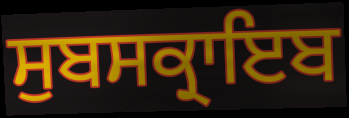
ਸੁਬਸਕ੍ਰਾਇਬ